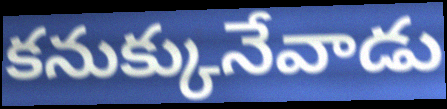
కనుక్కునేవాడు